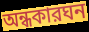
অন্ধকারঘন